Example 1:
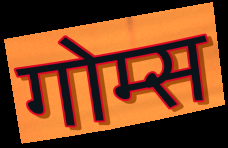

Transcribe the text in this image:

गोम्स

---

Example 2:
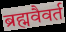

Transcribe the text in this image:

ब्रह्मवैवर्त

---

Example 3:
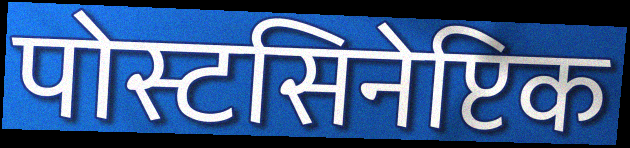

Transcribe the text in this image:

पोस्टसिनेप्टिक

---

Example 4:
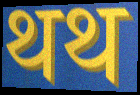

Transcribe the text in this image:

थथ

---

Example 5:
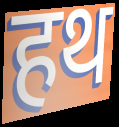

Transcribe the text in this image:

हथ